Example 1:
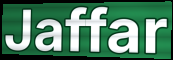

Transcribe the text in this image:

Jaffar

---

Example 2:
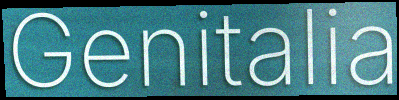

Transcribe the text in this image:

Genitalia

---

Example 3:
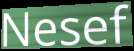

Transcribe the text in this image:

Nesef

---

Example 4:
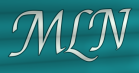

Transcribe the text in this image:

MLN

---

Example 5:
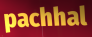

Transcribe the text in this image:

pachhal